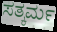
ಸತ್ಕರ್ಮ